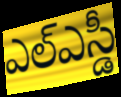
ఎల్ఎస్డీ